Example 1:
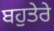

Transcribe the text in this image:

ਬਹੁਤੇਰੇ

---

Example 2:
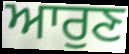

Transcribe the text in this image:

ਆਰੁਣ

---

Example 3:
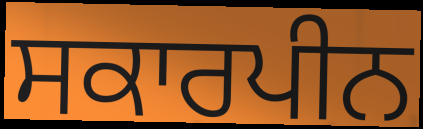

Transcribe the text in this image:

ਸਕਾਰਪੀਨ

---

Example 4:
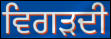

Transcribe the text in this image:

ਵਿਗੜਦੀ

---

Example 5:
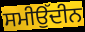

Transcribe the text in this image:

ਸਮੀਉੱਦੀਨ